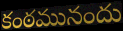
కంఠమునందు